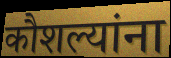
कौशल्यांना